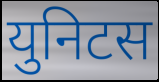
युनिटस